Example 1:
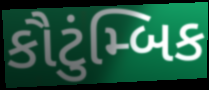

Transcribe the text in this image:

કૌટુંમ્બિક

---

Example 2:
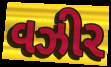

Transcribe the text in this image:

વઝીર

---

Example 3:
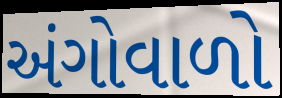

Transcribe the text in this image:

અંગોવાળો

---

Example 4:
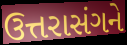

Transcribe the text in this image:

ઉત્તરાસંગને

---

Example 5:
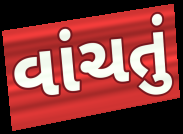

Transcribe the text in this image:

વાંચતું